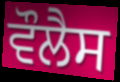
ਵੌਲੈਸ